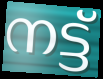
നട്ട്